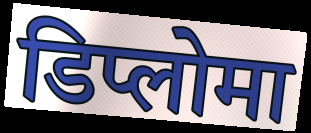
डिप्लोमा